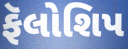
ફૅલોશિપ